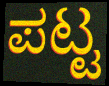
ಪಟ್ಟ